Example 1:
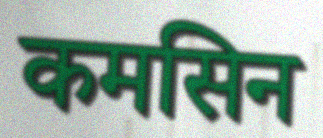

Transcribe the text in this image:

कमसिन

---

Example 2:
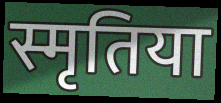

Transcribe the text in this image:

स्मृतिया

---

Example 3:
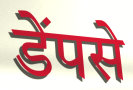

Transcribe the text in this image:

डेंपसे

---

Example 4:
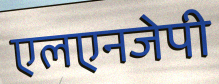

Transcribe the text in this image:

एलएनजेपी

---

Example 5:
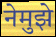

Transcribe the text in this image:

नेमुझे